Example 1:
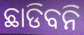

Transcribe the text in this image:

ଛାଡିବନି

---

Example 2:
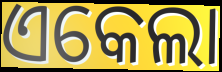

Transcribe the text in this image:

ଏକେଲା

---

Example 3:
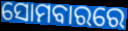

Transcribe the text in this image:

ସୋମବାରରେ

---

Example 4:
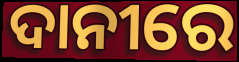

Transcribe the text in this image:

ଦାନୀରେ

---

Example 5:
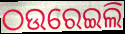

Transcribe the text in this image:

ଠଉରେଇଲି